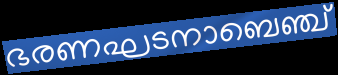
ഭരണഘടനാബെഞ്ച്